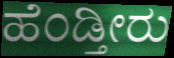
ಹೆಂಡ್ತೀರು